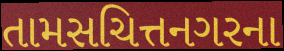
તામસચિત્તનગરના